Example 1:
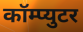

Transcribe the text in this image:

कॉम्प्युटर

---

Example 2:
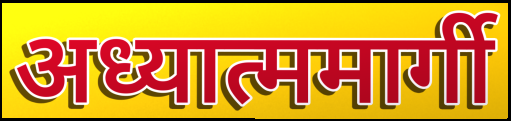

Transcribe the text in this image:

अध्यात्ममार्गी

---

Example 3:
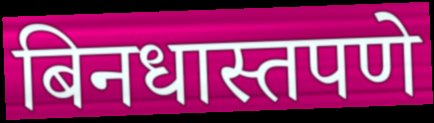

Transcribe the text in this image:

बिनधास्तपणे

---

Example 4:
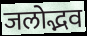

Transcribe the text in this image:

जलोद्भव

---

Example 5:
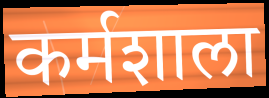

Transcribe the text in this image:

कर्मशाला